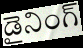
డైనింగ్